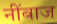
नींबाज